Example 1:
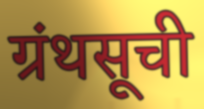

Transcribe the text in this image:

ग्रंथसूची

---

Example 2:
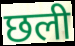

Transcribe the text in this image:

छली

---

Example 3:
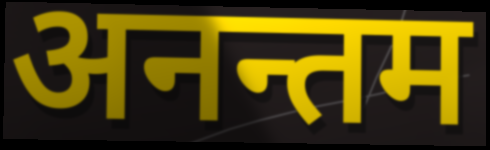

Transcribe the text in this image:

अनन्तम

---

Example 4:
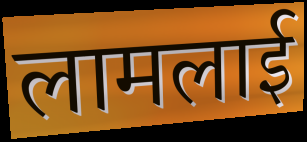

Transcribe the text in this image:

लामलाई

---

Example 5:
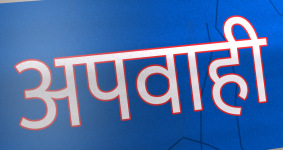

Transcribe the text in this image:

अपवाही